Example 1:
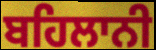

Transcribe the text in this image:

ਬਹਿਲਾਨੀ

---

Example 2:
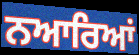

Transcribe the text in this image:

ਨਆਰਿਆਂ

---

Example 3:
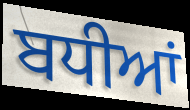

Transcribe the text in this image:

ਬਧੀਆਂ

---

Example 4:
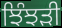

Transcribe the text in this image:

ਝਿੰਝੜੀ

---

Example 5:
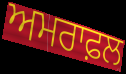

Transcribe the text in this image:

ਅਮਰਾਫ਼ਲ